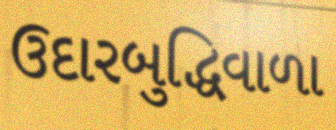
ઉદારબુદ્ધિવાળા